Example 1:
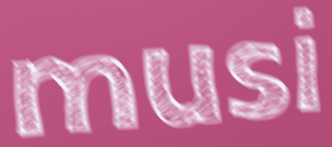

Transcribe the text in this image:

musi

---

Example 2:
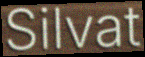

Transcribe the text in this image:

Silvat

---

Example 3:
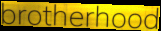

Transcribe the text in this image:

brotherhood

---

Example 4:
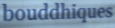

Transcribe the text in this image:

bouddhiques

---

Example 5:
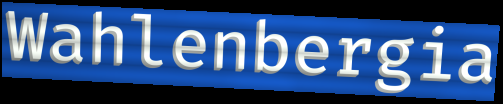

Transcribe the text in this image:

Wahlenbergia